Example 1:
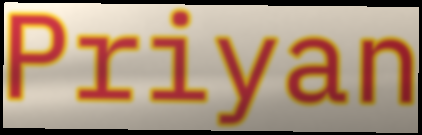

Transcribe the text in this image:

Priyan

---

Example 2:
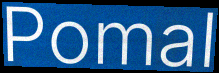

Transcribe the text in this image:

Pomal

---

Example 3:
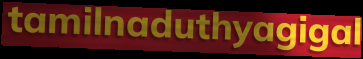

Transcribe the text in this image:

tamilnaduthyagigal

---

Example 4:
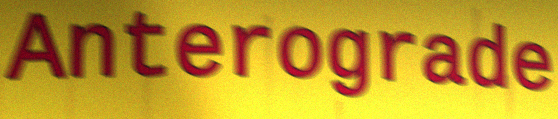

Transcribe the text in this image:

Anterograde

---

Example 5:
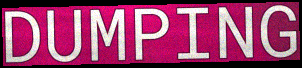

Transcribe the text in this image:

DUMPING